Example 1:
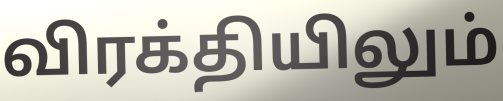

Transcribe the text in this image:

விரக்தியிலும்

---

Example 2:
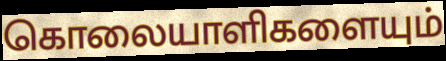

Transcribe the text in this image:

கொலையாளிகளையும்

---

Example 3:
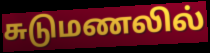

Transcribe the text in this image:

சுடுமணலில்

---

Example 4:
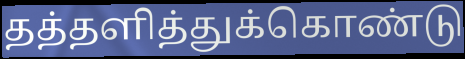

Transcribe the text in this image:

தத்தளித்துக்கொண்டு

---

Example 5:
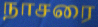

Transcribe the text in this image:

நாசரை